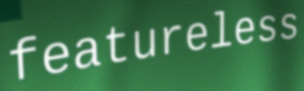
featureless